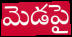
మెడపై